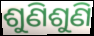
ଶୁଣିଶୁଣି